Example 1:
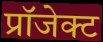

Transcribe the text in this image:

प्रॉजेक्‍ट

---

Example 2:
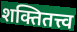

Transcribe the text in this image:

शक्तितत्त्व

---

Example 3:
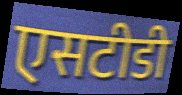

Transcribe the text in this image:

एसटीडी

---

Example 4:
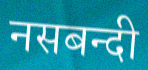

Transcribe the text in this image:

नसबन्दी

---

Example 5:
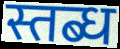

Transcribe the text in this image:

स्तब्ध